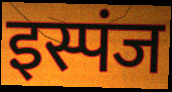
इस्पंज